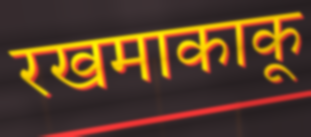
रखमाकाकू